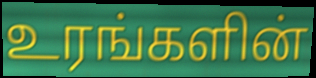
உரங்களின்